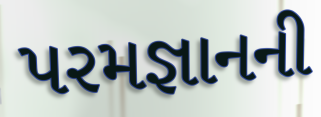
પરમજ્ઞાનની